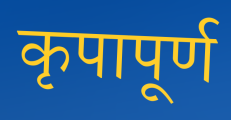
कृपापूर्ण